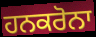
ਹਨਕਰੋਨਾ